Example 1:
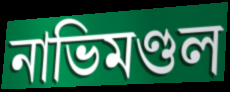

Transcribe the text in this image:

নাভিমণ্ডল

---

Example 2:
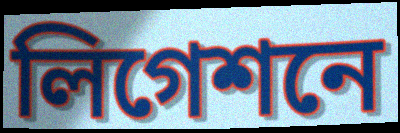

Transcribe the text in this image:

লিগেশনে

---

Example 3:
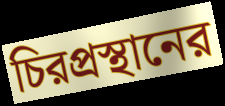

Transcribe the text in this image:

চিরপ্রস্থানের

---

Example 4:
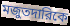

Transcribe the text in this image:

মজুতদারিকে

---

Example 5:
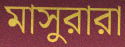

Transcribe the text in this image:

মাসুরারা